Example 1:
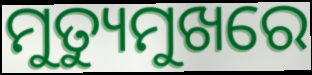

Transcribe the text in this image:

ମୁତ୍ୟୁମୁଖରେ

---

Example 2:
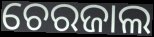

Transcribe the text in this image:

ଚେରଜାଲ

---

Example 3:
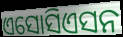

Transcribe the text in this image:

ଏସୋସିଏସନ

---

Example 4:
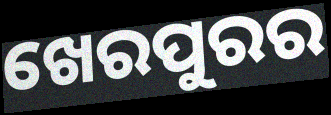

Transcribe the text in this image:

ଖେରପୁରର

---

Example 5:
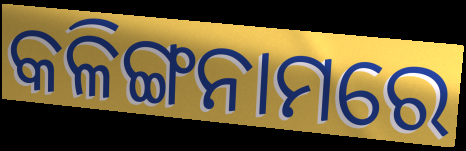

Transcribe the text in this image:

କଳିଙ୍ଗନାମରେ